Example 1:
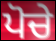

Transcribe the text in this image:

ਪੋਚੇ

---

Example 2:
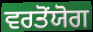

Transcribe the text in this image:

ਵਰਤੋਂਯੋਗ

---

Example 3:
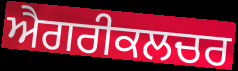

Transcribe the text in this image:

ਐਗਰੀਕਲਚਰ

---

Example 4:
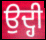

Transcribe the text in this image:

ਉਦ੍ਹੀ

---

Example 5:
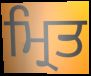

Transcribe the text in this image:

ਮ੍ਰਿਤ